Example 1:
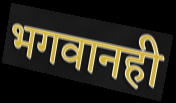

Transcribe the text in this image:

भगवानही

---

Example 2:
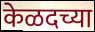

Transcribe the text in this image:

केळदच्या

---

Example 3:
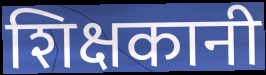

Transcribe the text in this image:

शिक्षकानी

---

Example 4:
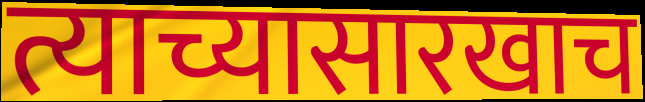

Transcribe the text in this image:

त्याच्यासारखाच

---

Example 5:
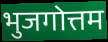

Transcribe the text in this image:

भुजगोत्तम